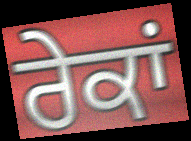
ਰੇਕਾਂ